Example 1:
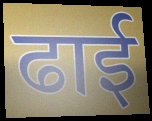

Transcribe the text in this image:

ढाई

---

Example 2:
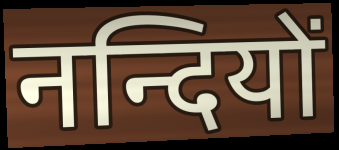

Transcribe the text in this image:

नन्दियों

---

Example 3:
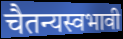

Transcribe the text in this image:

चैतन्यस्वभावी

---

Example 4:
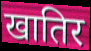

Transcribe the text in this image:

खातिर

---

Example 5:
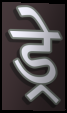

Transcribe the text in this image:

ड्रे